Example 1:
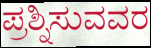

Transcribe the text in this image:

ಪ್ರಶ್ನಿಸುವವರ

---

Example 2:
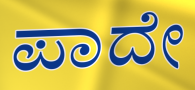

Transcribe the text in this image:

ಪಾದೇ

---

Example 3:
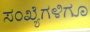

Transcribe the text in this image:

ಸಂಖ್ಯೆಗಳಿಗೂ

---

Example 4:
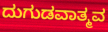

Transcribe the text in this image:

ದುಗುಡವಾತ್ಮವ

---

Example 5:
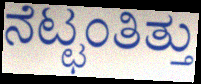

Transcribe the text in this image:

ನೆಟ್ಟಂತಿತ್ತು